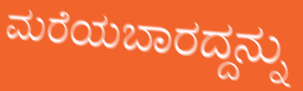
ಮರೆಯಬಾರದ್ದನ್ನು